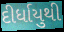
દીર્ધાયુથી